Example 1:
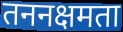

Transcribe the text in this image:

तननक्षमता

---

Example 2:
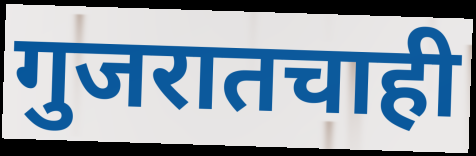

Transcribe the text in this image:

गुजरातचाही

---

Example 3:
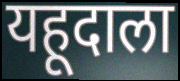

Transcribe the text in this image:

यहूदाला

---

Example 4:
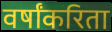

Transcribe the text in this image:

वर्षांकरिता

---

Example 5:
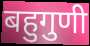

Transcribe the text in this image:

बहुगुणी